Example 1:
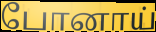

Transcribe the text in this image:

போனாய்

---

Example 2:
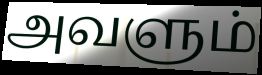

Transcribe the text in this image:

அவளும்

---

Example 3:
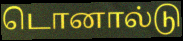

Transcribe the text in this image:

டொனால்டு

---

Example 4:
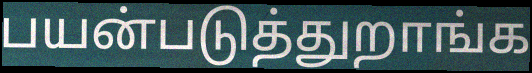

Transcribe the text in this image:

பயன்படுத்துறாங்க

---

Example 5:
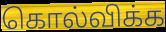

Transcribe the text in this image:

கொல்விக்க